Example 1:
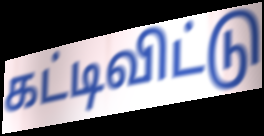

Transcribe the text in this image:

கட்டிவிட்டு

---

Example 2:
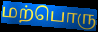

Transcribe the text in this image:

மற்பொரு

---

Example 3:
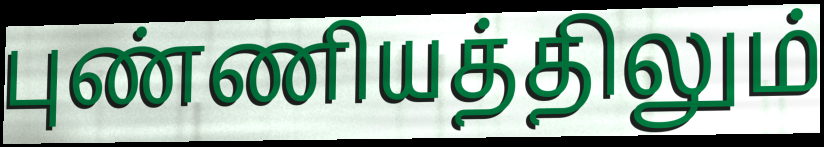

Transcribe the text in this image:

புண்ணியத்திலும்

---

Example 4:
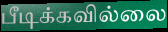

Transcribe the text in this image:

பீடிக்கவில்லை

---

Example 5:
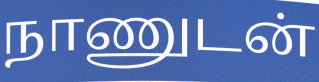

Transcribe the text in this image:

நாணுடன்